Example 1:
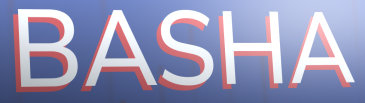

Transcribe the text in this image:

BASHA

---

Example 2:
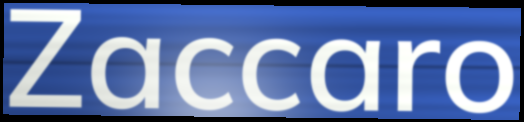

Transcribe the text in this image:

Zaccaro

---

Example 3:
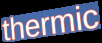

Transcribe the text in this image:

thermic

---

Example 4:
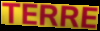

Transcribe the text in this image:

TERRE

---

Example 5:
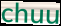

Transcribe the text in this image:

chuu